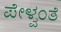
ಪೇಳ್ವಂತೆ